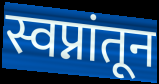
स्वप्नांतून